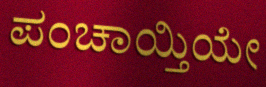
ಪಂಚಾಯ್ತಿಯೇ